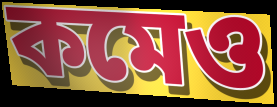
কমেও